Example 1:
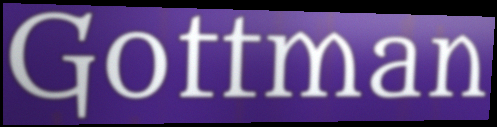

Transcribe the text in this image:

Gottman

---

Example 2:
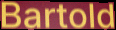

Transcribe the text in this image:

Bartold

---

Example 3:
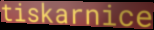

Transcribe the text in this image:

tiskarnice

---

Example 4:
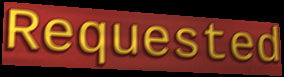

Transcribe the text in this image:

Requested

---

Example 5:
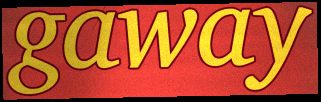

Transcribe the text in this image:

gaway